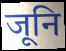
जूनि